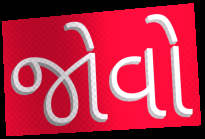
જોવો